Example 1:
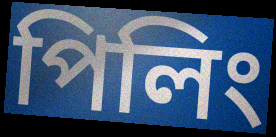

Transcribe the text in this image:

পিলিং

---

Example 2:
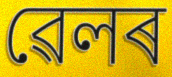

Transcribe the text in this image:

ৱেলৰ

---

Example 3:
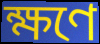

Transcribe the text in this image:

ক্ষণে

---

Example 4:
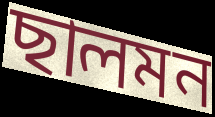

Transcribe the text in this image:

ছালমন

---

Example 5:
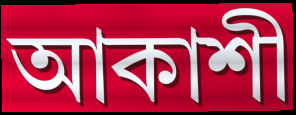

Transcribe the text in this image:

আকাশী